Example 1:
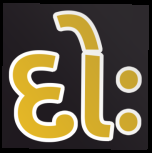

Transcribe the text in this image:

દોઃ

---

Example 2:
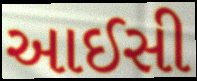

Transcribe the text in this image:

આઈસી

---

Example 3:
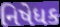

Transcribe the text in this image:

નિષેધક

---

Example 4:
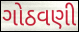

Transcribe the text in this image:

ગોઠવણી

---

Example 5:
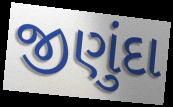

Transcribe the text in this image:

જીણુંદા